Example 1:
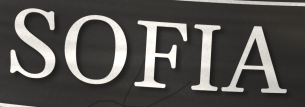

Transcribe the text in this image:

SOFIA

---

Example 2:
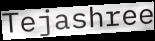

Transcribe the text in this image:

Tejashree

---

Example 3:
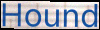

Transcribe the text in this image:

Hound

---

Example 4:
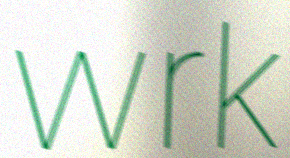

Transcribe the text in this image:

wrk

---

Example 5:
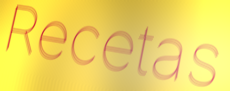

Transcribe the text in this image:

Recetas